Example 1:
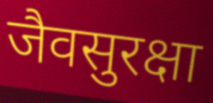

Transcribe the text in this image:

जैवसुरक्षा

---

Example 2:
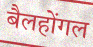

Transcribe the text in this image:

बैलहोंगल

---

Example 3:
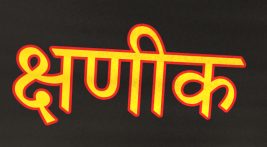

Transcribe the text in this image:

क्षणीक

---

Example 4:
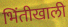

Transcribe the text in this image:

भिंतीखाली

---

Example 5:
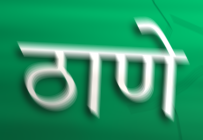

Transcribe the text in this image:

ठाणे